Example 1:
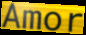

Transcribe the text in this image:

Amor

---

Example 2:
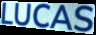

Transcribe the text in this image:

LUCAS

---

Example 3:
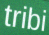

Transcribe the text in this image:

tribi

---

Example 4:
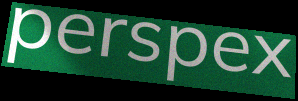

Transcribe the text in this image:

perspex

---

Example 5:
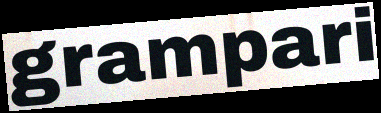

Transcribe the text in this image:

grampari